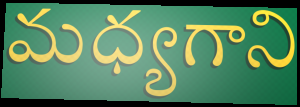
మధ్యగాని